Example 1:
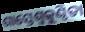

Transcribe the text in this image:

ଶାସ୍ତେଶ୍ବକୁଣ୍ଠିତା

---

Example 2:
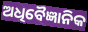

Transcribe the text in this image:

ଅଧିବୈଜ୍ଞାନିକ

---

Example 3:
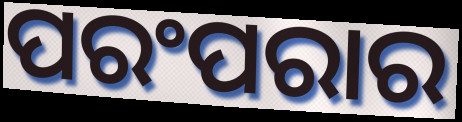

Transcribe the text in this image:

ପରଂପରାର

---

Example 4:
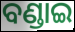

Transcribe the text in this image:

ବଣ୍ଡାଇ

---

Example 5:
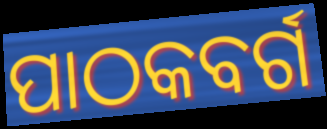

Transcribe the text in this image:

ପାଠକବର୍ଗ